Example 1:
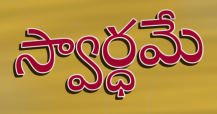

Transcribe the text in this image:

స్వార్ధమే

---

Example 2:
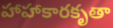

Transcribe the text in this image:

హాహాకారకృతా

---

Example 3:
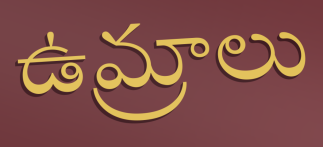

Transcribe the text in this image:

ఉమ్రాలు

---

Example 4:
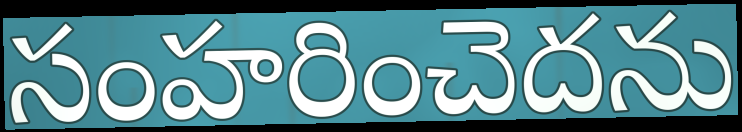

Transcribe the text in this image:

సంహరించెదను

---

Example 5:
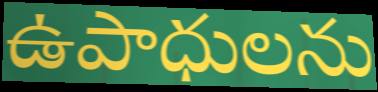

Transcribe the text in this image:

ఉపాధులను